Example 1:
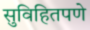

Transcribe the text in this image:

सुविहितपणे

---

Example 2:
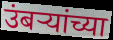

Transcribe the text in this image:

उंबऱ्यांच्या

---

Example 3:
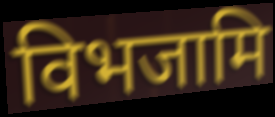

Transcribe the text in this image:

विभजामि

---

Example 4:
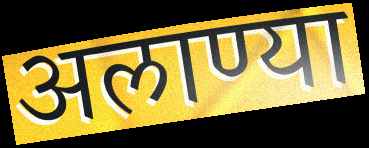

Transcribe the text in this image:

अलाण्या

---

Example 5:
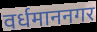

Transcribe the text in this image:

वर्धमाननगर